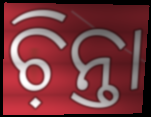
ଚ଼ିନ୍ତା